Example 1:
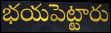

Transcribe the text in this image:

భయపెట్టారు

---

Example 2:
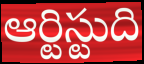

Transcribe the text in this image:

ఆర్టిస్టుది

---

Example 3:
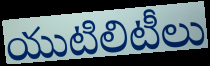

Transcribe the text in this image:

యుటిలిటీలు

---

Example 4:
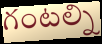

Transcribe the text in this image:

గంటల్ని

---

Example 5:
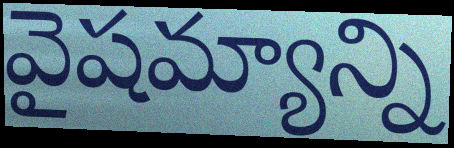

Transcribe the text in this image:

వైషమ్యాన్ని